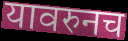
यावरुनच